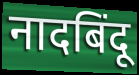
नादबिंदू